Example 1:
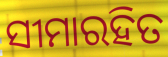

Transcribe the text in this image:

ସୀମାରହିତ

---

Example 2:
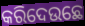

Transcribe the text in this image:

କରିଦେଉଛେ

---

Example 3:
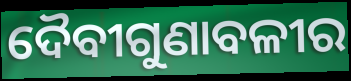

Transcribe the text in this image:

ଦୈବୀଗୁଣାବଳୀର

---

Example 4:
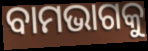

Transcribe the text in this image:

ବାମଭାଗକୁ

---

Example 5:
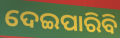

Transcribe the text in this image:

ଦେଇପାରିବି